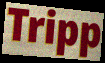
Tripp